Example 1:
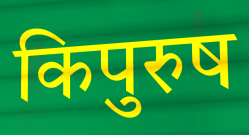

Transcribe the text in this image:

किपुरुष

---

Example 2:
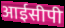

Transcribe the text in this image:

आईसीपी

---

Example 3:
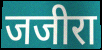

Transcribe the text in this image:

जजीरा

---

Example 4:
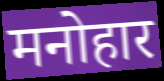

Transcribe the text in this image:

मनोहार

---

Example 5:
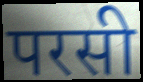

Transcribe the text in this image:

परसी